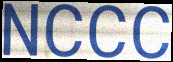
NCCC